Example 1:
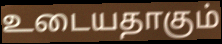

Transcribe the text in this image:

உடையதாகும்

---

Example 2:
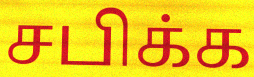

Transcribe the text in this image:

சபிக்க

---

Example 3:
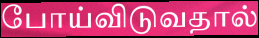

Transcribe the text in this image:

போய்விடுவதால்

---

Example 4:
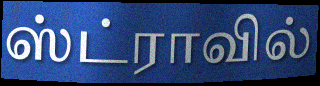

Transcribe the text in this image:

ஸ்ட்ராவில்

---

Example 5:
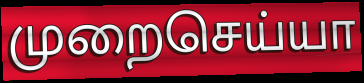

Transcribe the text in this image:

முறைசெய்யா